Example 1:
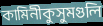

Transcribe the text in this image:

কামিনীকুসুমগুলি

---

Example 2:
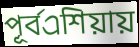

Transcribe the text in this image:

পূর্বএশিয়ায়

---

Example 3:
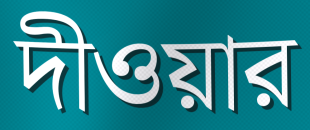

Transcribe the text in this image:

দীওয়ার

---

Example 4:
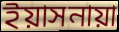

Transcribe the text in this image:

ইয়াসনায়া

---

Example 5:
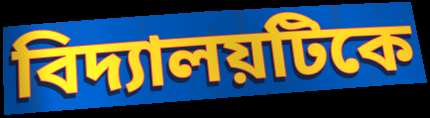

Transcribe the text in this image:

বিদ্যালয়টিকে